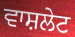
ਵਾਸ਼ਲੇਟ